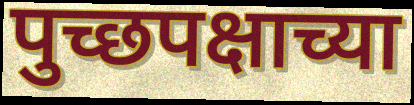
पुच्छपक्षाच्या